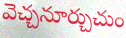
వెచ్చనూర్చుచుం